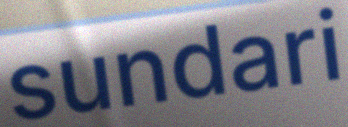
sundari